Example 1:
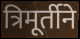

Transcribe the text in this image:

त्रिमूर्तीने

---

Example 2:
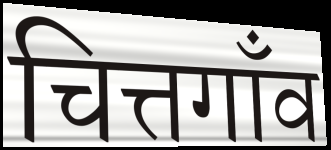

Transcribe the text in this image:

चित्तगाँव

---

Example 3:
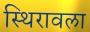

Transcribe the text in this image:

स्थिरावला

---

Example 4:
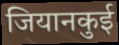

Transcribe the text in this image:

जियानकुई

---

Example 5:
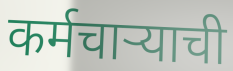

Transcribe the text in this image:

कर्मचाऱ्याची